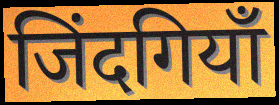
जिंदगियाँ